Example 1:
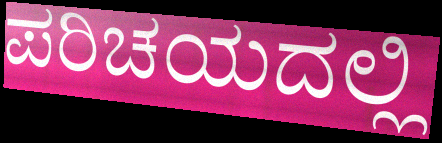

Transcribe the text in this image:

ಪರಿಚಯದಲ್ಲಿ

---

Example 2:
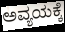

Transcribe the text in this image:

ಅವ್ಯಯಕ್ಕೆ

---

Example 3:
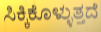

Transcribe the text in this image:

ಸಿಕ್ಕಿಕೊಳ್ಳುತ್ತದೆ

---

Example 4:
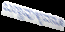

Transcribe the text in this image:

ಬಣ್ಣವುಳ್ಳವನೂ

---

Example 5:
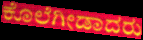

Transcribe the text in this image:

ಕೊಲೆಗೀಡಾದರು